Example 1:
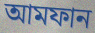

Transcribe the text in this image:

আমফান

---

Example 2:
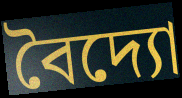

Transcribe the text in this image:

বৈদ্যো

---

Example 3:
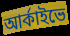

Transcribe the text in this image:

আর্কাইভে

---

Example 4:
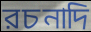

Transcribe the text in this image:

রচনাদি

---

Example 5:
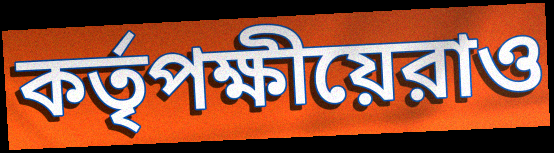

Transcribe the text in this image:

কর্তৃপক্ষীয়েরাও